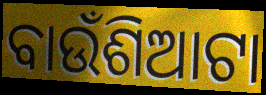
ବାଉଁଶିଆଟା